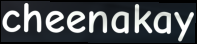
cheenakay